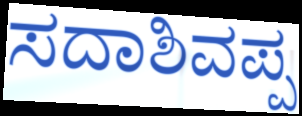
ಸದಾಶಿವಪ್ಪ